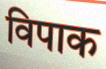
विपाक